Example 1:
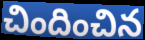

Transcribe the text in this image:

చిందించిన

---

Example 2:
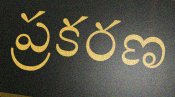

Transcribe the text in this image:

ప్రకరణ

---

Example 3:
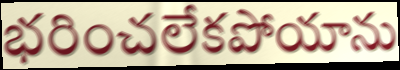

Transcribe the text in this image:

భరించలేకపోయాను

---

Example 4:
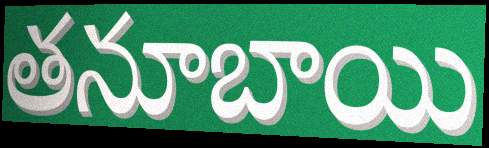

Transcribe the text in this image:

తనూబాయి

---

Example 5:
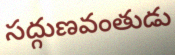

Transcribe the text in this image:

సద్గుణవంతుడు